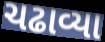
ચઢાવ્યા